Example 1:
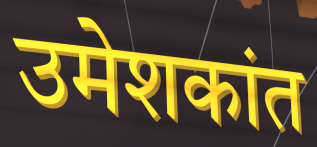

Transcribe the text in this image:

उमेशकांत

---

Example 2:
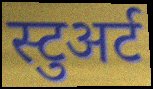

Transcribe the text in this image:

स्टुअर्ट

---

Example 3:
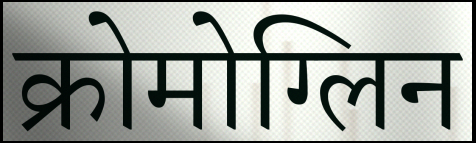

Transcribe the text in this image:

क्रोमोग्लिन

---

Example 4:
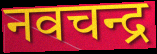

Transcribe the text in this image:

नवचन्द्र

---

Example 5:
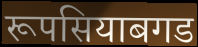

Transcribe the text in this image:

रूपसियाबगड